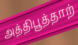
அத்திபூத்தாற்